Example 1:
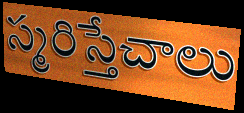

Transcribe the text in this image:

స్మరిస్తేచాలు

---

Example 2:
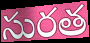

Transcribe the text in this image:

సురత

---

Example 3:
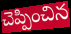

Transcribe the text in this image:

చెప్పించిన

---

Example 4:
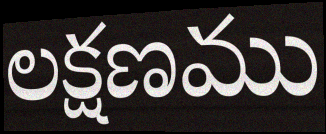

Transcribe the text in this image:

లక్షణము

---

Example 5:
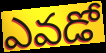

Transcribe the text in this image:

ఎవడో